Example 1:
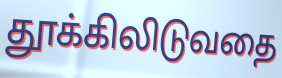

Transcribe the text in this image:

தூக்கிலிடுவதை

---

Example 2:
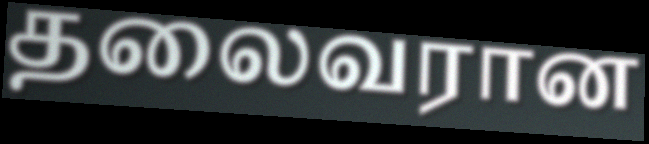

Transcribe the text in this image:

தலைவரான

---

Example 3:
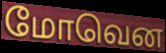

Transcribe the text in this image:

மோவென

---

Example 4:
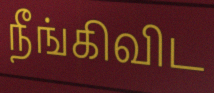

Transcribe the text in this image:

நீங்கிவிட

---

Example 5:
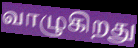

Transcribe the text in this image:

வாழுகிறது